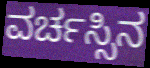
ವರ್ಚಸ್ಸಿನ